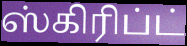
ஸ்கிரிப்ட்